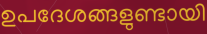
ഉപദേശങ്ങളുണ്ടായി